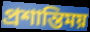
প্রশান্তিময়